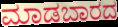
ಮಾಡಬಾರದ